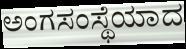
ಅಂಗಸಂಸ್ಥೆಯಾದ